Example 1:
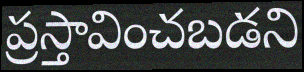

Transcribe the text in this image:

ప్రస్తావించబడని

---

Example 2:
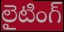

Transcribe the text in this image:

లైటింగ్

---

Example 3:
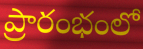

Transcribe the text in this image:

ప్రారంభంలో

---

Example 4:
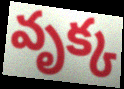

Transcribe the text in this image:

వృక్క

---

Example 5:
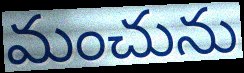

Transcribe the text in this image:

మంచును